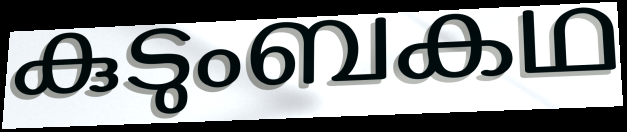
കുടുംബകഥ